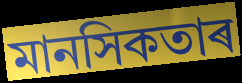
মানসিকতাৰ